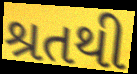
શ્રતથી